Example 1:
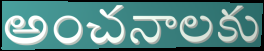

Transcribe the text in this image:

అంచనాలకు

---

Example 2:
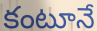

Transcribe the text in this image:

కంటూనే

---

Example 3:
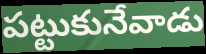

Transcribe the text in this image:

పట్టుకునేవాడు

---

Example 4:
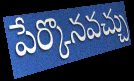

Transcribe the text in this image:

పేర్కొనవచ్చు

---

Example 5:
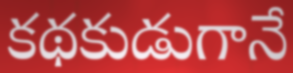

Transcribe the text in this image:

కథకుడుగానే